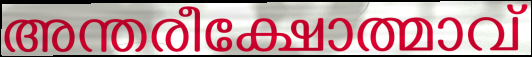
അന്തരീക്ഷോത്മാവ്